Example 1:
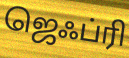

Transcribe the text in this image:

ஜெஃப்ரி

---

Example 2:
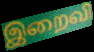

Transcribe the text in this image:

இறைவி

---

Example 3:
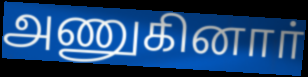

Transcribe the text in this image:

அணுகினார்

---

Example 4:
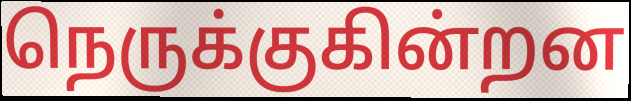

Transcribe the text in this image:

நெருக்குகின்றன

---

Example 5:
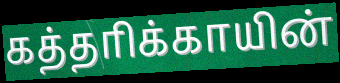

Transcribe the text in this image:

கத்தரிக்காயின்